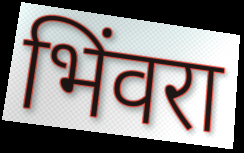
भिंवरा